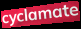
cyclamate